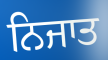
ਨਿਜਾਤ